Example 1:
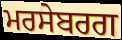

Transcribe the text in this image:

ਮਰਸੇਬਰਗ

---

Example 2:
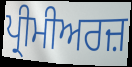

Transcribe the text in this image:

ਪ੍ਰੀਮੀਅਰਜ਼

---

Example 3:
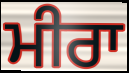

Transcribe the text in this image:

ਮੀਰਾ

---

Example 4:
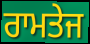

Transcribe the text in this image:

ਰਾਮਤੇਜ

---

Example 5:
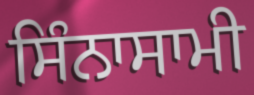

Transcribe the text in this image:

ਸਿੰਨਾਸਾਮੀ